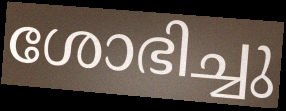
ശോഭിച്ചു